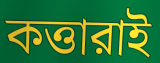
কত্তারাই